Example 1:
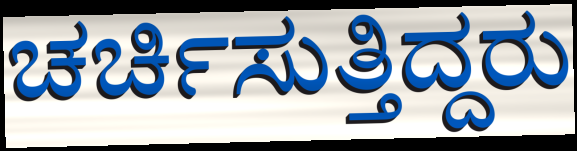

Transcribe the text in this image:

ಚರ್ಚಿಸುತ್ತಿದ್ದರು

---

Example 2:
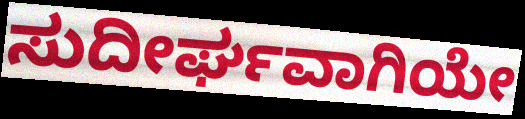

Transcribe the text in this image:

ಸುದೀರ್ಘವಾಗಿಯೇ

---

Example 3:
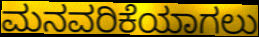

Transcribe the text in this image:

ಮನವರಿಕೆಯಾಗಲು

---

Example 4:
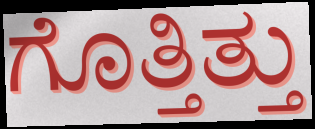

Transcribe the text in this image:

ಗೊತ್ತಿತ್ತು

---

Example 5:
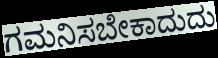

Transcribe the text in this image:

ಗಮನಿಸಬೇಕಾದುದು